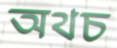
অথচ